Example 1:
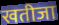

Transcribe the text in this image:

खतीजा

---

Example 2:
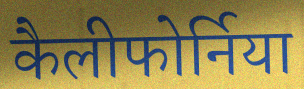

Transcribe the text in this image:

कैलीफोर्निया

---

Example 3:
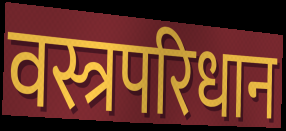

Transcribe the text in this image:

वस्त्रपरिधान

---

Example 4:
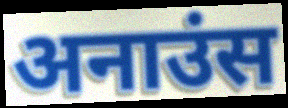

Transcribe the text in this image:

अनाउंस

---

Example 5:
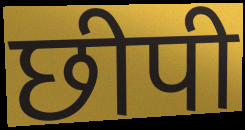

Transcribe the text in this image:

छीपी